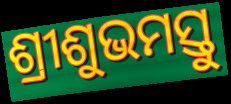
ଶ୍ରୀଶୁଭମସ୍ତୁ